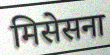
मिसेसना